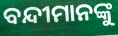
ବନ୍ଦୀମାନଙ୍କୁ